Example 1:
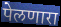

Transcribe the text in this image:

पेलणारा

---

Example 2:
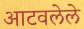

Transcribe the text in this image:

आटवलेले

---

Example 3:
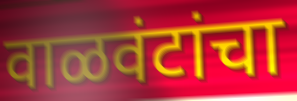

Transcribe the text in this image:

वाळवंटांचा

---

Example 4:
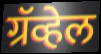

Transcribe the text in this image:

ग्रॅव्हेल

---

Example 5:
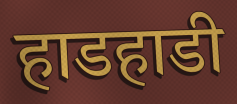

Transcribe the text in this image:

हाडहाडी